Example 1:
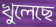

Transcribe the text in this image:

খুলেছে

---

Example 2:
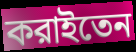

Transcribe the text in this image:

করাইতেন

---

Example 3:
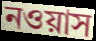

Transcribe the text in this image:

নওয়াস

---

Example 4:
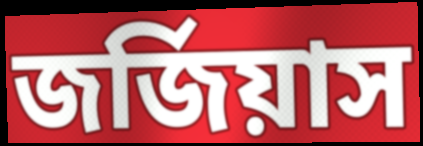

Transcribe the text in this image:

জর্জিয়াস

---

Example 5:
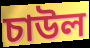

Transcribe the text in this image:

চাউল